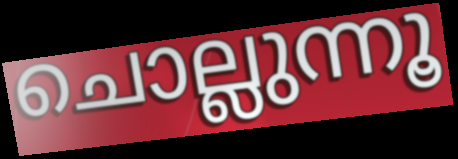
ചൊല്ലുന്നൂ